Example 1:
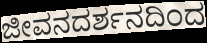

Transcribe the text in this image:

ಜೀವನದರ್ಶನದಿಂದ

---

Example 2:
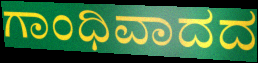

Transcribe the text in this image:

ಗಾಂಧಿವಾದದ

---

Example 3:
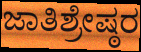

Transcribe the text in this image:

ಜಾತಿಶ್ರೇಷ್ಠರ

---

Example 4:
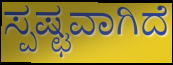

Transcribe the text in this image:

ಸ್ಪಷ್ಟವಾಗಿದೆ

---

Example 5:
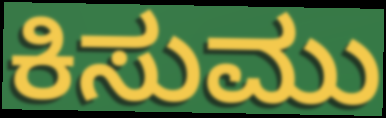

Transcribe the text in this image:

ಕಿಸುಮು